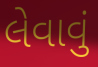
લેવાવું